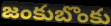
జంకుబొంకు